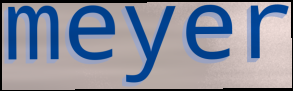
meyer